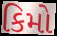
કિમો